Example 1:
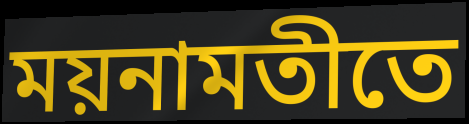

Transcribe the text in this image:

ময়নামতীতে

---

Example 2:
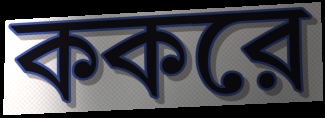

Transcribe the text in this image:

ককরে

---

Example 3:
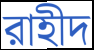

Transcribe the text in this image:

রাহীদ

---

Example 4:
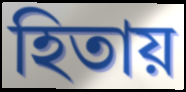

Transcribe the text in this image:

হিতায়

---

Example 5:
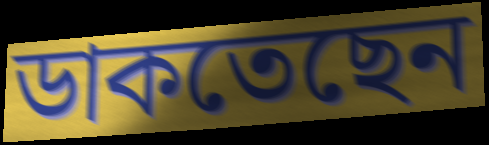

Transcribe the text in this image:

ডাকতেছেন